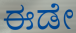
ಈಡೇ